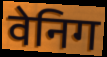
वेनिग